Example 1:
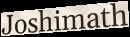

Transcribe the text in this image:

Joshimath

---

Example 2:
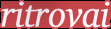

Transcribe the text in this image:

ritrovai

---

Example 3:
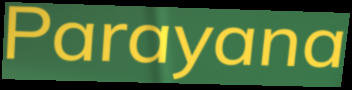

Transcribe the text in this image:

Parayana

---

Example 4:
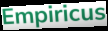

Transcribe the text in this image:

Empiricus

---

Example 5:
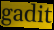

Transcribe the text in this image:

gadit